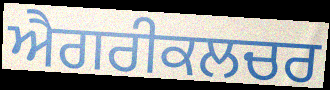
ਐਗਰੀਕਲਚਰ